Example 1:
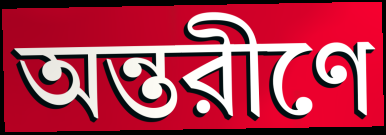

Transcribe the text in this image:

অন্তরীণে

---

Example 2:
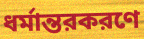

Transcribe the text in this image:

ধর্মান্তরকরণে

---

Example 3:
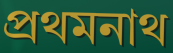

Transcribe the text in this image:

প্রথমনাথ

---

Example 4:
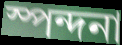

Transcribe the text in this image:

স্পন্দনা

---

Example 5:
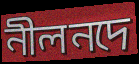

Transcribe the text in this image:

নীলনদে